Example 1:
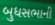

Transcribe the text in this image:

બુધસભાની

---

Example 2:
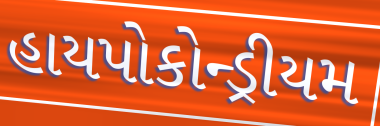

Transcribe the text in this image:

હાયપોકોન્ડ્રીયમ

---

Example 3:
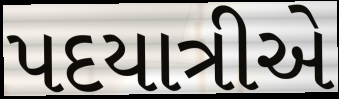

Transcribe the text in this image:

પદયાત્રીએ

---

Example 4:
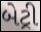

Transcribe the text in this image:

બેટ્રી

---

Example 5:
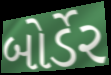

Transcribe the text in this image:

બોર્ડેર